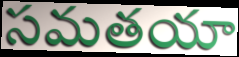
సమతయా